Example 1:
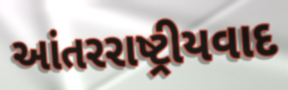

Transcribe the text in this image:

આંતરરાષ્ટ્રીયવાદ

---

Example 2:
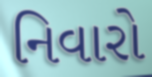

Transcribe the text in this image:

નિવારો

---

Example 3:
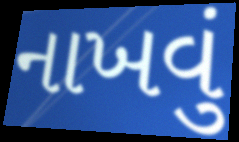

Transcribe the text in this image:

નાખવું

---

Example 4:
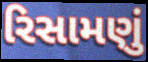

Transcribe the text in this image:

રિસામણું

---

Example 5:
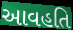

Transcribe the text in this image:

આવહતિ